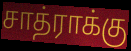
சாத்ராக்கு